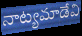
నాట్యమాడేవి